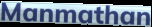
Manmathan